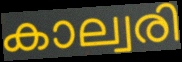
കാല്വരി